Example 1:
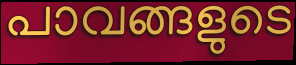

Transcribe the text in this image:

പാവങ്ങളുടെ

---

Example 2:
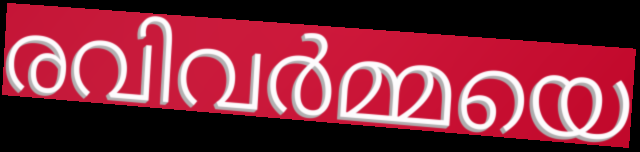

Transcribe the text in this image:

രവിവർമ്മയെ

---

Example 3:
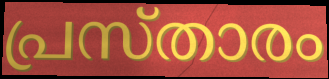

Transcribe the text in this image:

പ്രസ്താരം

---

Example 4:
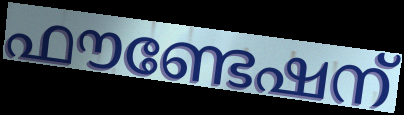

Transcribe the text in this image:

ഫൗണ്ടേഷന്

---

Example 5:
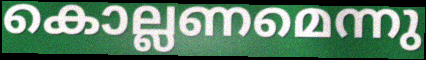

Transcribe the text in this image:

കൊല്ലണമെന്നു